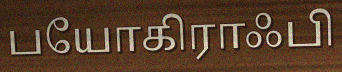
பயோகிராஃபி